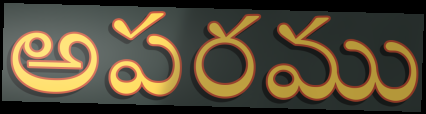
అపరము